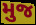
મુજ